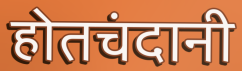
होतचंदानी